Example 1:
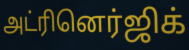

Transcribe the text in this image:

அட்ரினெர்ஜிக்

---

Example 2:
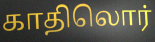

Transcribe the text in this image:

காதிலொர்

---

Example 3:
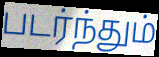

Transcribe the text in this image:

படர்ந்தும்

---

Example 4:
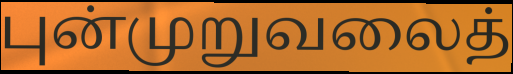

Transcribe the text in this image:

புன்முறுவலைத்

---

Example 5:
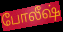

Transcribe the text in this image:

போலீஷ்